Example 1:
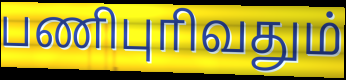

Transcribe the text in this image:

பணிபுரிவதும்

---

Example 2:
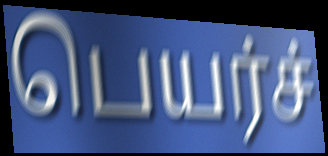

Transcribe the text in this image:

பெயர்ச்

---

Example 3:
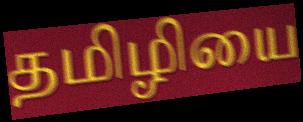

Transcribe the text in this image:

தமிழியை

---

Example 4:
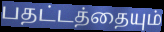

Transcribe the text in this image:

பதட்டத்தையும்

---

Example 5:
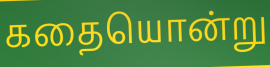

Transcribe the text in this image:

கதையொன்று